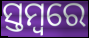
ସ୍ତମ୍ବରେ